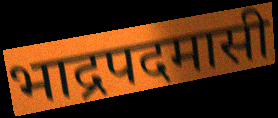
भाद्रपदमासी